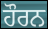
ਹੌਰਨ